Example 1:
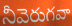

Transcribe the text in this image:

నీవెరుగవా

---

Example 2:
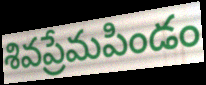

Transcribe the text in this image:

శివప్రేమపిండం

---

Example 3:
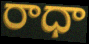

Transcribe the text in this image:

రాధా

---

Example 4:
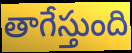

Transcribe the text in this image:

తాగేస్తుంది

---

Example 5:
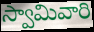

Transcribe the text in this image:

స్వామివారి